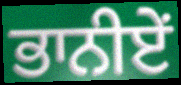
ਭਾਨੀਏਂ